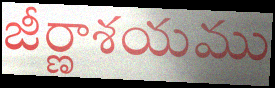
జీర్ణాశయము